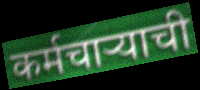
कर्मचार्‍याची